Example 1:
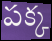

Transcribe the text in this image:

పక్క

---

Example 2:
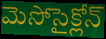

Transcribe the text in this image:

మెసోసైక్లోన్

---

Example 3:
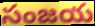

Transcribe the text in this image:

సంజయ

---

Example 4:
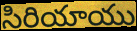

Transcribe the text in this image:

సిరియాయు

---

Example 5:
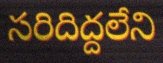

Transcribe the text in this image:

సరిదిద్దలేని